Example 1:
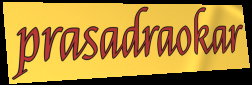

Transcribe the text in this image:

prasadraokar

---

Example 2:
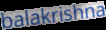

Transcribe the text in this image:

balakrishna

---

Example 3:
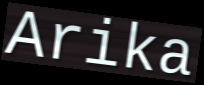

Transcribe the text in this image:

Arika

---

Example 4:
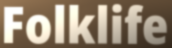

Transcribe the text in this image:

Folklife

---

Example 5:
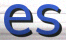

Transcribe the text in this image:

es